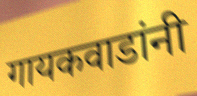
गायकवाडांनी